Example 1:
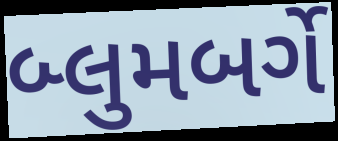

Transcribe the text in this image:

બ્લુમબર્ગે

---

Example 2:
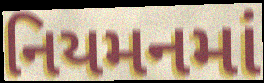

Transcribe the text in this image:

નિયમનમાં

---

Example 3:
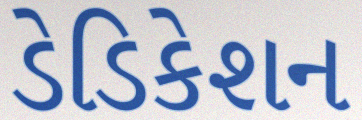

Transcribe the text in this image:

ડેડિકેશન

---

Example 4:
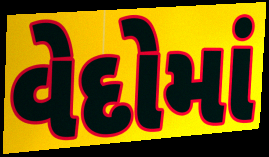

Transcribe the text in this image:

વેદોમાં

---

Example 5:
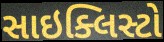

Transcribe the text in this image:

સાઇક્લિસ્ટો